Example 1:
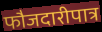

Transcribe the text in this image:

फौजदारीपात्र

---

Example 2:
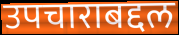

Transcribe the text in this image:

उपचाराबद्दल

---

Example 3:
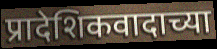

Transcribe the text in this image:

प्रादेशिकवादाच्या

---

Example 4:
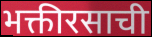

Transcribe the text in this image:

भक्तीरसाची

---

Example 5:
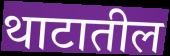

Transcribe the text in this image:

थाटातील